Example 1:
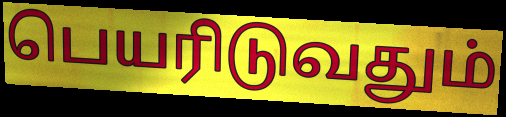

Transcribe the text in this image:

பெயரிடுவதும்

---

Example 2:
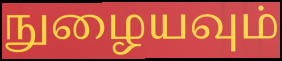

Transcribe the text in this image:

நுழையவும்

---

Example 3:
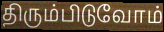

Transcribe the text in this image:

திரும்பிடுவோம்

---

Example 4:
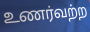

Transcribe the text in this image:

உணர்வற்ற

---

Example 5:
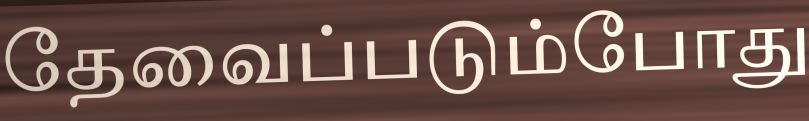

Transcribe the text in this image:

தேவைப்படும்போது